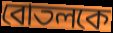
বোতলকে